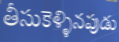
తీసుకెళ్ళినపుడు